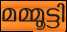
മമ്മൂട്ടി